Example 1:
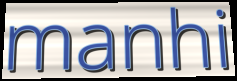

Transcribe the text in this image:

manhi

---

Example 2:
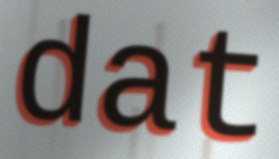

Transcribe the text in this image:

dat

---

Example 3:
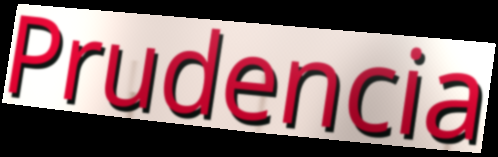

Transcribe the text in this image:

Prudencia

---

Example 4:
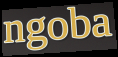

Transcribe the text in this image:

ngoba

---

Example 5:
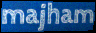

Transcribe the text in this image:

majham